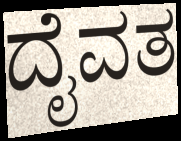
ದೈವತ